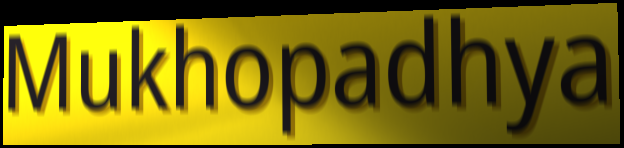
Mukhopadhya